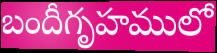
బందీగృహములో